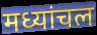
मध्यांचल